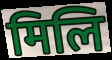
मिलि